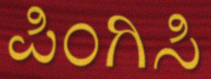
ಪಿಂಗಿಸಿ